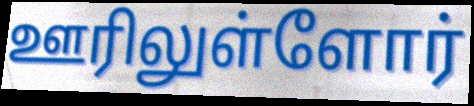
ஊரிலுள்ளோர்